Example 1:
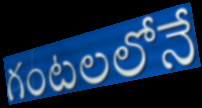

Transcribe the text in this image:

గంటలలోనే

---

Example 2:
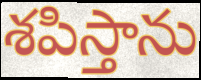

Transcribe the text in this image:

శపిస్తాను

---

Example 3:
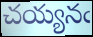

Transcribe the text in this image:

చయ్యనఁ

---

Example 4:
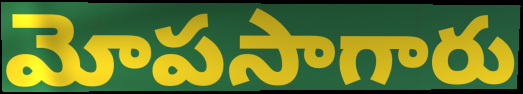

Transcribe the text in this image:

మోపసాగారు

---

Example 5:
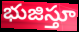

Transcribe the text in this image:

భుజిస్తూ